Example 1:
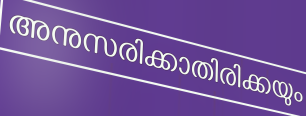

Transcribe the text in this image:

അനുസരിക്കാതിരിക്കയും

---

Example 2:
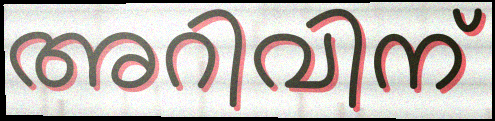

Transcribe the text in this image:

അറിവിന്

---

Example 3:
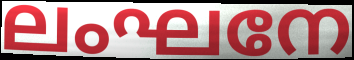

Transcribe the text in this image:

ലംഘനേ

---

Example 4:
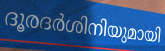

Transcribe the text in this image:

ദൂരദർശിനിയുമായി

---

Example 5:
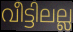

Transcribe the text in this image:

വീട്ടിലല്ല